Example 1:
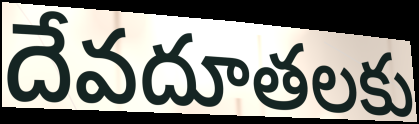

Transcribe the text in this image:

దేవదూతలకు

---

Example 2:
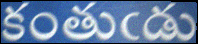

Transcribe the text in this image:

కంతుఁడు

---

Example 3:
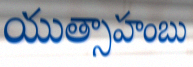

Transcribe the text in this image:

యుత్సాహంబు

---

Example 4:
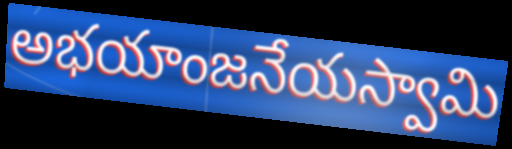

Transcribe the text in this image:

అభయాంజనేయస్వామి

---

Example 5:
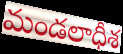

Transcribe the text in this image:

మండలాధీశ